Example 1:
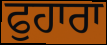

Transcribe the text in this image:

ਫੁਹਾਰਾ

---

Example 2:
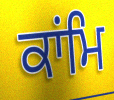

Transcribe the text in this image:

ਕਾਂਮਿ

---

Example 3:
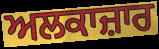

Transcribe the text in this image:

ਅਲਕਾਜ਼ਾਰ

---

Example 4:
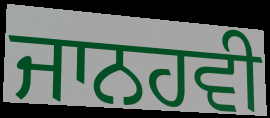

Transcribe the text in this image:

ਜਾਨਹਵੀ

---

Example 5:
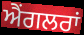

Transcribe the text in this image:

ਐਂਗਲਰਾਂ